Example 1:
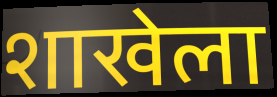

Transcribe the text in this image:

शाखेला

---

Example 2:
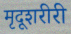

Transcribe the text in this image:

मृदूशरीरी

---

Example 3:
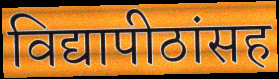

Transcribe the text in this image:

विद्यापीठांसह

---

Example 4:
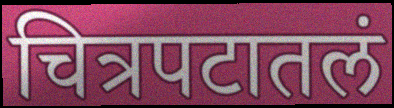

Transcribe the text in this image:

चित्रपटातलं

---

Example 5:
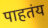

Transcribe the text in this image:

पाहतंय